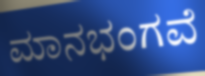
ಮಾನಭಂಗವೆ